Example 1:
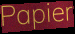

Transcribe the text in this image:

Papier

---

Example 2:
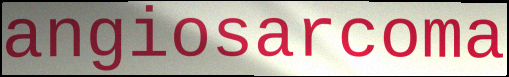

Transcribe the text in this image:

angiosarcoma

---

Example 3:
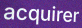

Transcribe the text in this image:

acquirer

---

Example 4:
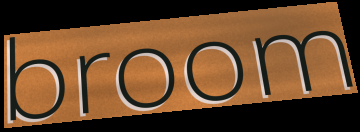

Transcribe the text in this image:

broom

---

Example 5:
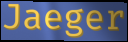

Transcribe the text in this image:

Jaeger